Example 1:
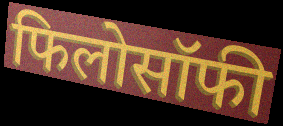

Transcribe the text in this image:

फिलोसॉफी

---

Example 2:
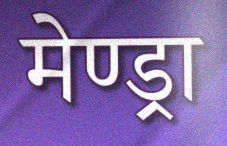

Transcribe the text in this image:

मेण्ड्रा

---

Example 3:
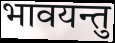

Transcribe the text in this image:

भावयन्तु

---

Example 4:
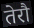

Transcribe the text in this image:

तेरौ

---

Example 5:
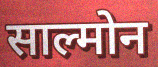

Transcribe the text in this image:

साल्मोन